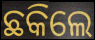
ଛକିଲେ